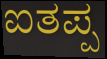
ಐತಪ್ಪ